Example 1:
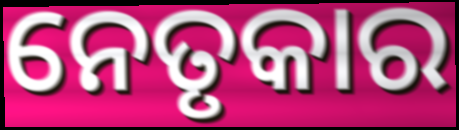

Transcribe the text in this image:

ନେତୃକାର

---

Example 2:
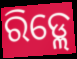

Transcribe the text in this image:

ରିଡ୍ଲେ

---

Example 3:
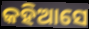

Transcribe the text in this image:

କହିଆସେ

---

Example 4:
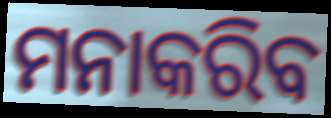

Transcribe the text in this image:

ମନାକରିବ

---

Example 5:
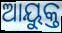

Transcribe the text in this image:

ଆୟୁକ୍ତ